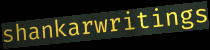
shankarwritings